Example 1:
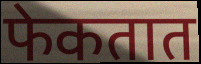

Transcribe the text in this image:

फेकतात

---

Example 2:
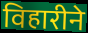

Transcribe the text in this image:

विहारीने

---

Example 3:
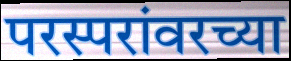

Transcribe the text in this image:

परस्परांवरच्या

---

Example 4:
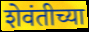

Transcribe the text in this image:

शेवंतीच्या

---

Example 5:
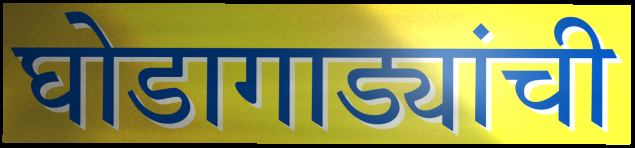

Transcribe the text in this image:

घोडागाड्यांची